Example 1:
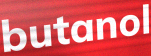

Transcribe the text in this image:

butanol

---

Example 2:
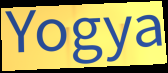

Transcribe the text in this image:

Yogya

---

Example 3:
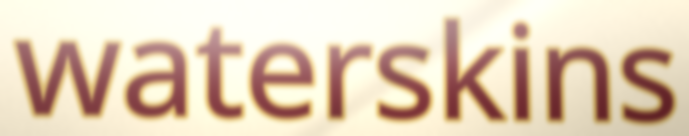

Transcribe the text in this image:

waterskins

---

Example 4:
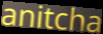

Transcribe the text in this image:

anitcha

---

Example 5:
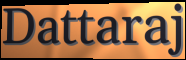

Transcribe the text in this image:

Dattaraj